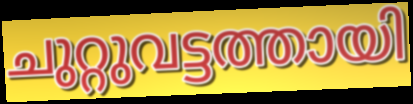
ചുറ്റുവട്ടത്തായി